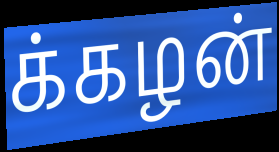
க்கழன்